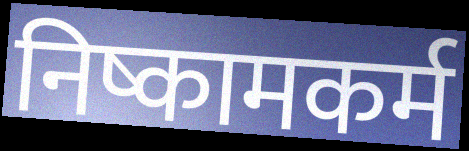
निष्कामकर्म